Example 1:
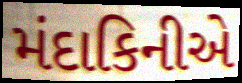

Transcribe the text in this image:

મંદાકિનીએ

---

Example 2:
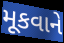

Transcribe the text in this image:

મૂકવાને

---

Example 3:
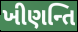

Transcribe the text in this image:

ખીણન્તિ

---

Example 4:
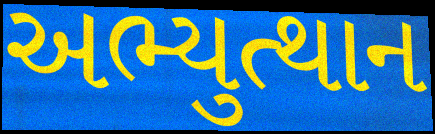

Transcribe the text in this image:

અભ્યુત્થાન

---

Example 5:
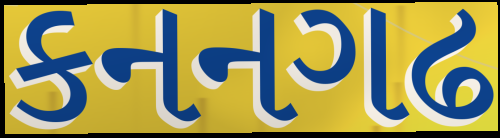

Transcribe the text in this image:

કનનગઢ